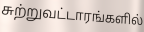
சுற்றுவட்டாரங்களில்